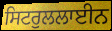
ਸਿਟਰੁਲਲਾਈਨ